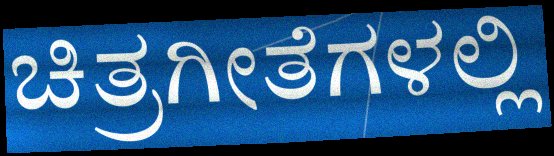
ಚಿತ್ರಗೀತೆಗಳಲ್ಲಿ